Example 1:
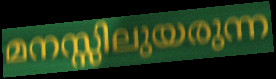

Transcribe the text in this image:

മനസ്സിലുയരുന്ന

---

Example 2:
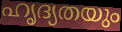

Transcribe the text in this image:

ഹൃദ്യതയും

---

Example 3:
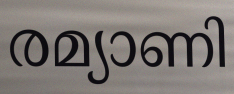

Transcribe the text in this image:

രമ്യാണി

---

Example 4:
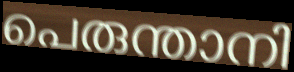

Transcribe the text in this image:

പെരുന്താനി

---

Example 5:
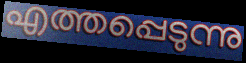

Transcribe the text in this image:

എത്തപ്പെടുന്നു